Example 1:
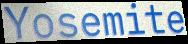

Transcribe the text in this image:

Yosemite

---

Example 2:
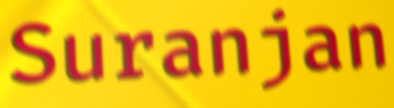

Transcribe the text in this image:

Suranjan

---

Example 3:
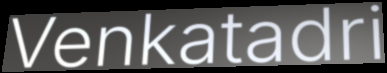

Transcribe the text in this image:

Venkatadri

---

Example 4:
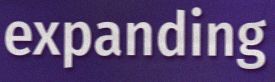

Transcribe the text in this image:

expanding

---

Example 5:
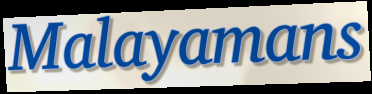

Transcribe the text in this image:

Malayamans